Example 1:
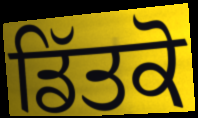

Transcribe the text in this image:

ਡਿੱਤਕੋ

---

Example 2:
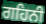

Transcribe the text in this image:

ਗਹਿਨੀ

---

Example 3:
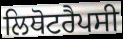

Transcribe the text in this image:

ਲਿਥੋਟਰੈਪਸੀ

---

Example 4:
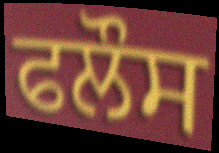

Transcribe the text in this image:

ਫਲੌਸ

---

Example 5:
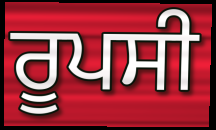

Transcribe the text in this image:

ਰੂਪਸੀ